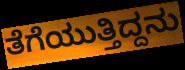
ತೆಗೆಯುತ್ತಿದ್ದನು